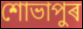
শোভাপুৰ